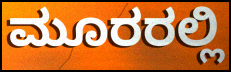
ಮೂರರಲ್ಲಿ